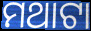
ମଥାଟା